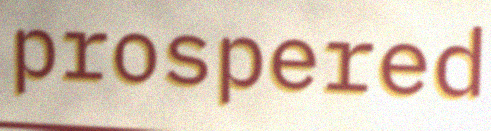
prospered